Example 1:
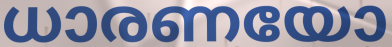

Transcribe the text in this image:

ധാരണയോ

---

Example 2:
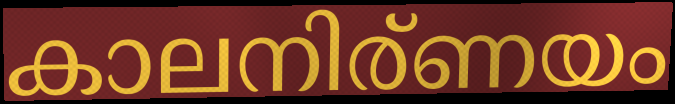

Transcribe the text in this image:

കാലനിര്ണയം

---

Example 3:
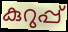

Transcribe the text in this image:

കുറുപ്പ്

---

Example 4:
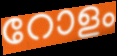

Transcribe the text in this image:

റോളം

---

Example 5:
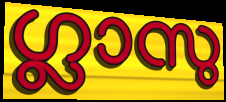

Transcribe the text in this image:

ഗ്ലാസു